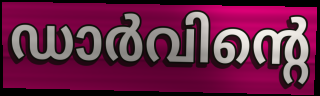
ഡാർവിന്റെ